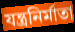
যন্ত্রনির্মাতা